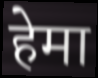
हेमा